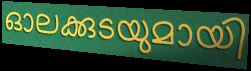
ഓലക്കുടയുമായി